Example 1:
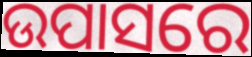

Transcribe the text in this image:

ଉପାସରେ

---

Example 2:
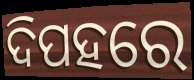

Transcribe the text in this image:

ଦିପହରେ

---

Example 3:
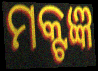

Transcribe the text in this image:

ମକ୍ଟଜ୍ଞ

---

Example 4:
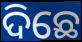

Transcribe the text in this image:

ଦିଛେ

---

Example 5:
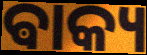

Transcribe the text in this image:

ଵାକ୍ୟ